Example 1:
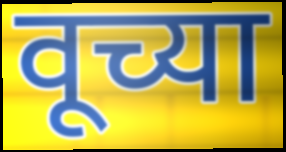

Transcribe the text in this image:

वूच्या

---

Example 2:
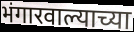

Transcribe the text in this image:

भंगारवाल्याच्या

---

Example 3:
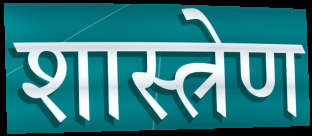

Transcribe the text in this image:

शास्त्रेण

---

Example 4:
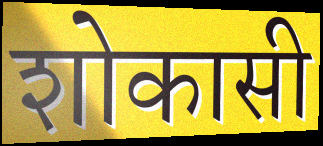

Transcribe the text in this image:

शोकासी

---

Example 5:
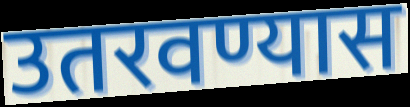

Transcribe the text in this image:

उतरवण्यास